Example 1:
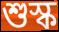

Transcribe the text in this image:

শুস্ক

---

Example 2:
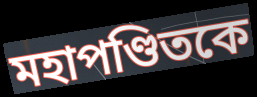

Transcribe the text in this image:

মহাপণ্ডিতকে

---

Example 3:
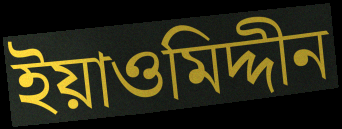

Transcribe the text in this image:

ইয়াওমিদ্দীন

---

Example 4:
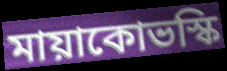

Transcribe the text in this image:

মায়াকোভস্কি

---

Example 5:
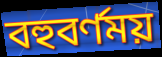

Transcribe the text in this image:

বহুবর্ণময়